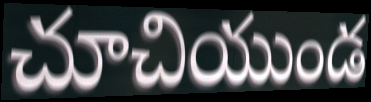
చూచియుండ